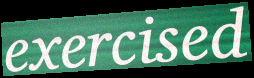
exercised